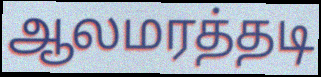
ஆலமரத்தடி